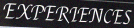
EXPERIENCES